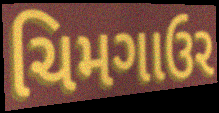
ચિમગાઉર